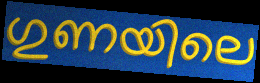
ഗുണയിലെ